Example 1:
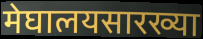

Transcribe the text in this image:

मेघालयसारख्या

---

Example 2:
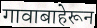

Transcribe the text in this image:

गावाबाहेरून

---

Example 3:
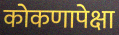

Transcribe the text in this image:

कोकणापेक्षा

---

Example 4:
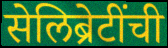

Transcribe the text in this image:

सेलिब्रेटींची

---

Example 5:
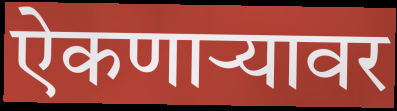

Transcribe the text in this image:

ऐकणाऱ्यावर